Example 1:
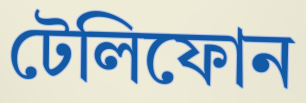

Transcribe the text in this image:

টেলিফোন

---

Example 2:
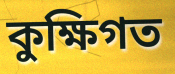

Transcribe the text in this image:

কুক্ষিগত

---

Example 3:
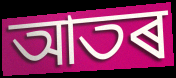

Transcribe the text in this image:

আতৰ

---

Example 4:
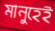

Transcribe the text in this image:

মানুহেই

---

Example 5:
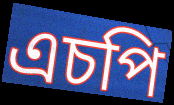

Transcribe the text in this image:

এচপি